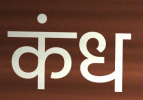
कंध